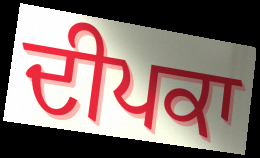
ਦੀਪਕਾ